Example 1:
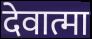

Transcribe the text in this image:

देवात्मा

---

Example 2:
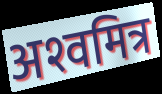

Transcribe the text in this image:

अश्वमित्र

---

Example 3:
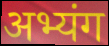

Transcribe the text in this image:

अभ्यंग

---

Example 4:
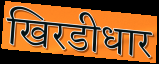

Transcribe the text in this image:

खिरडीधार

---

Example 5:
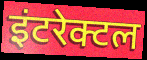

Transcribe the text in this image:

इंटरेक्टल